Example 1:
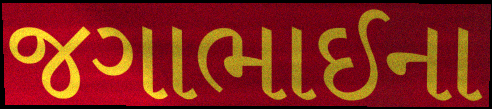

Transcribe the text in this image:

જગાભાઈના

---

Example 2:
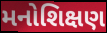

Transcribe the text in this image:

મનોશિક્ષણ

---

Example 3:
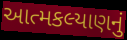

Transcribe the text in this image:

આત્મકલ્યાણનું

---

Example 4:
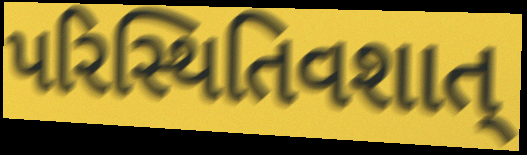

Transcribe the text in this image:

પરિસ્થિતિવશાત્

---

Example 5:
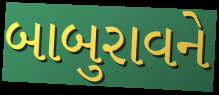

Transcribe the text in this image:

બાબુરાવને